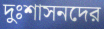
দুঃশাসনদের